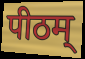
पीठम्